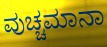
ವುಚ್ಚಮಾನಾ